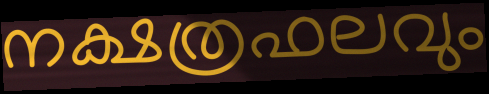
നക്ഷത്രഫലവും